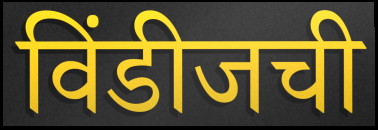
विंडीजची